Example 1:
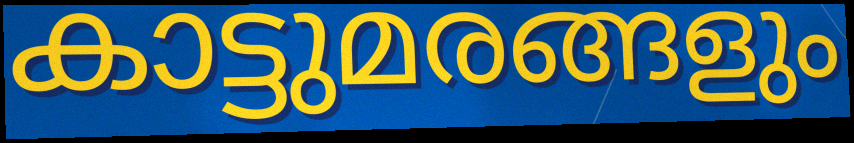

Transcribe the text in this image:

കാട്ടുമരങ്ങളും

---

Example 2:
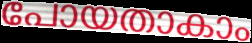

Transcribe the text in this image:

പോയതാകാം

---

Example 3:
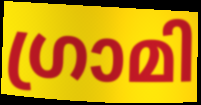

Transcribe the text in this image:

ഗ്രാമി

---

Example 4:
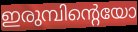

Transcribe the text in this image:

ഇരുമ്പിന്റെയോ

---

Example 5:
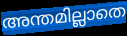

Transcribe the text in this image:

അന്തമില്ലാതെ